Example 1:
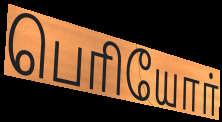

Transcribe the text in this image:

பெரியோர்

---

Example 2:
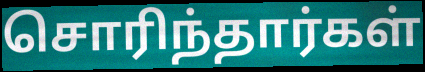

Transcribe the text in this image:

சொரிந்தார்கள்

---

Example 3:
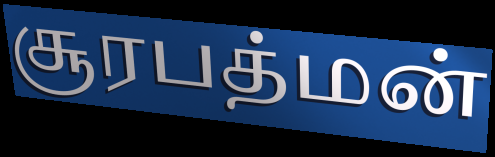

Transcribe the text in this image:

சூரபத்மன்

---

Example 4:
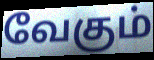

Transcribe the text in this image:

வேகும்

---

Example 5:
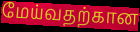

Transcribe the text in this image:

மேய்வதற்கான